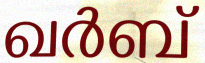
ഖർബ്